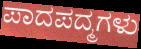
ಪಾದಪದ್ಮಗಳು